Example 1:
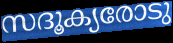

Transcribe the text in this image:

സദൂക്യരോടു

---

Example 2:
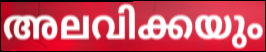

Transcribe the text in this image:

അലവിക്കയും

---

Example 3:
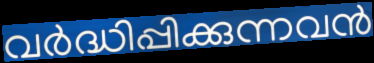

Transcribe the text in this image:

വർദ്ധിപ്പിക്കുന്നവൻ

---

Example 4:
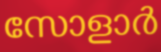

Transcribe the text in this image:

സോളാർ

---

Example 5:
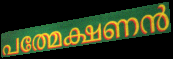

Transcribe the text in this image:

പത്മേക്ഷണൻ